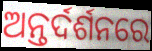
ଅନ୍ତର୍ଦର୍ଶନରେ